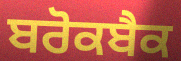
ਬਰੋਕਬੈਕ